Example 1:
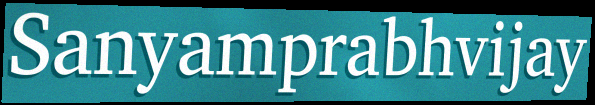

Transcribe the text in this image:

Sanyamprabhvijay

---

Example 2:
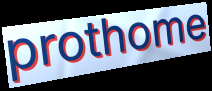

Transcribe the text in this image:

prothome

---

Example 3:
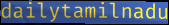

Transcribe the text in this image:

dailytamilnadu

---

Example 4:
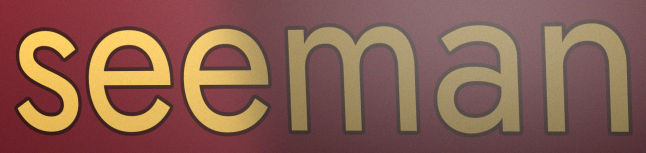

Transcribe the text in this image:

seeman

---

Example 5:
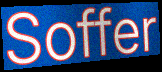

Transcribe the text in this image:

Soffer